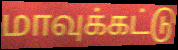
மாவுக்கட்டு